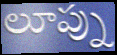
లూప్ను